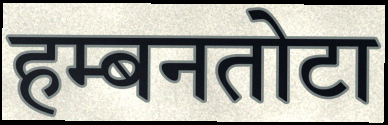
हम्बनतोटा